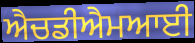
ਐਚਡੀਐਮਆਈ